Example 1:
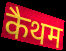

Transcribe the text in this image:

कैथम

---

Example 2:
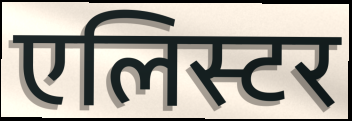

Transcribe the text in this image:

एलिस्टर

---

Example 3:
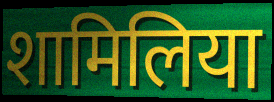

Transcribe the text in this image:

शामिलिया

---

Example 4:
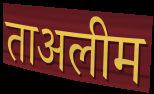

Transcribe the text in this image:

ताअलीम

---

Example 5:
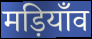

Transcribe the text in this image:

मड़ियाँव